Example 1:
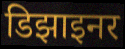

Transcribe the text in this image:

डिझाइनर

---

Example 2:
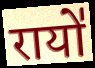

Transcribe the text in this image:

रायो॑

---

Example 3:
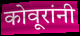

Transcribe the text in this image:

कोवूरांनी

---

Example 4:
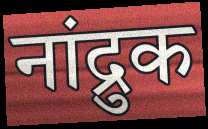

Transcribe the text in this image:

नांद्रुक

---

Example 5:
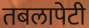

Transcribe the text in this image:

तबलापेटी